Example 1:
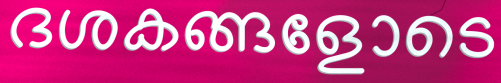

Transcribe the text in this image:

ദശകങ്ങളോടെ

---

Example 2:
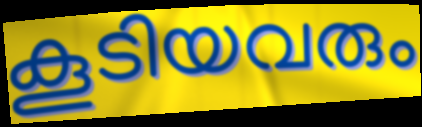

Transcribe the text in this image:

കൂടിയവരും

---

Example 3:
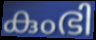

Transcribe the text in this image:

കുംഭി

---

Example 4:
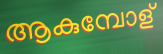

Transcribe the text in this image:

ആകുമ്പോള്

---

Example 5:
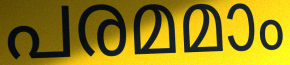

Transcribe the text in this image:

പരമമാം